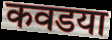
कवडया